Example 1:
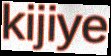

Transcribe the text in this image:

kijiye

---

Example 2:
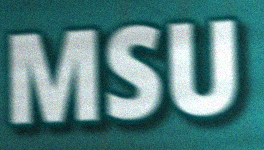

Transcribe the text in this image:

MSU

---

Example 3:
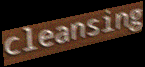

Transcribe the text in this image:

cleansing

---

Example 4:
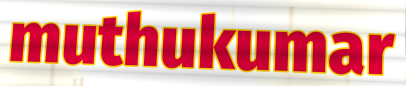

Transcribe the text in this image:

muthukumar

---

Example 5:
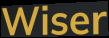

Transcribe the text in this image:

Wiser